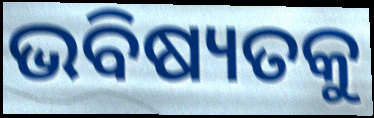
ଭବିଷ୍ୟତକୁ